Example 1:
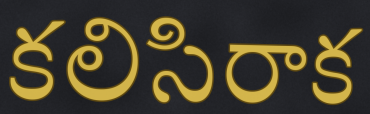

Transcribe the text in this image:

కలిసిరాక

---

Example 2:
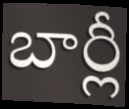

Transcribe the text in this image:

బార్లీ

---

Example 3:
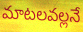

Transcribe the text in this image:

మాటలవల్లనే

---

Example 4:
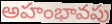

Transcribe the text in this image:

అహంభావపు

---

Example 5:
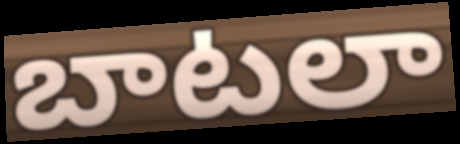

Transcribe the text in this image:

బాటలా